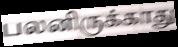
பலனிருக்காது